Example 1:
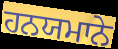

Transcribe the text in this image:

ਹਨਯਮਾਨੇ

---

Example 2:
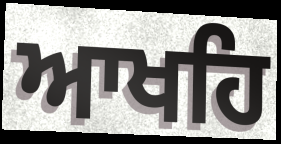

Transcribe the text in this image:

ਆਖਹਿ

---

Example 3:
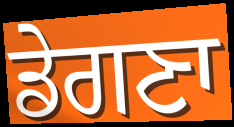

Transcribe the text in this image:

ਡੇਗਣਾ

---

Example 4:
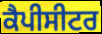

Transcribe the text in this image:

ਕੈਪੀਸੀਟਰ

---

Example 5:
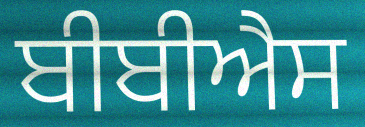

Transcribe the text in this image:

ਬੀਬੀਐਸ